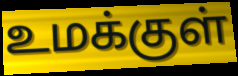
உமக்குள்